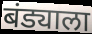
बंड्याला